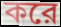
করে